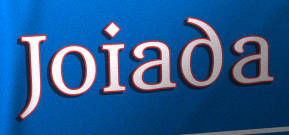
Joiada